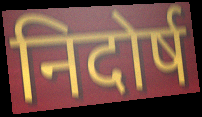
निदोर्ष